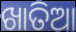
ଖାତିଆ